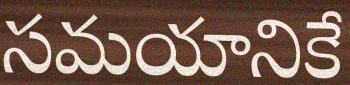
సమయానికే